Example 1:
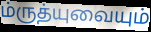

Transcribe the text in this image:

ம்ருத்யுவையும்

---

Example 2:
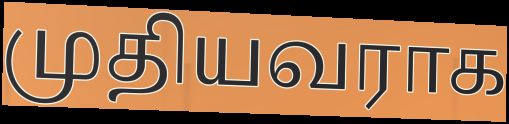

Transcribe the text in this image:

முதியவராக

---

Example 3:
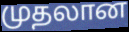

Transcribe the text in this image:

முதலான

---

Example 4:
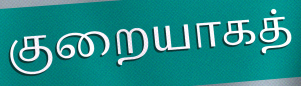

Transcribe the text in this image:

குறையாகத்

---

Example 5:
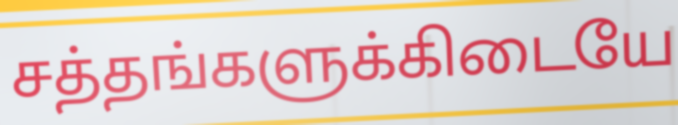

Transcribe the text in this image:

சத்தங்களுக்கிடையே